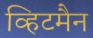
व्हिटमैन